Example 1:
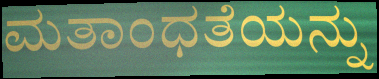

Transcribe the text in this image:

ಮತಾಂಧತೆಯನ್ನು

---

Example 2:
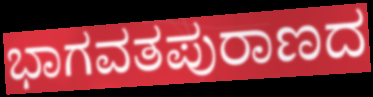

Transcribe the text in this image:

ಭಾಗವತಪುರಾಣದ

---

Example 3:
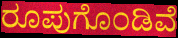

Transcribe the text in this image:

ರೂಪುಗೊಂಡಿವೆ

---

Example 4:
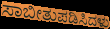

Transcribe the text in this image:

ಸಾಬೀತುಪಡಿಸಿದಳು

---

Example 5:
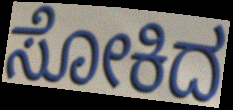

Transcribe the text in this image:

ಸೋಕಿದ